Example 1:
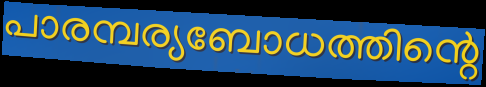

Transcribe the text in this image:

പാരമ്പര്യബോധത്തിന്റെ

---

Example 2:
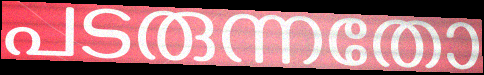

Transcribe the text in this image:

പടരുന്നതോ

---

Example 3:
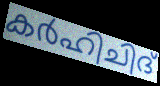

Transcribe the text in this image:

കർഹിചിദ്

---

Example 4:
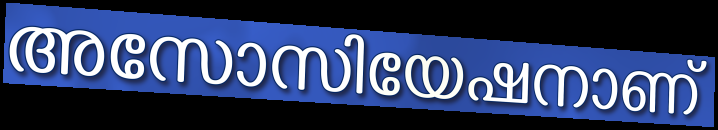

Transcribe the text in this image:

അസോസിയേഷനാണ്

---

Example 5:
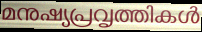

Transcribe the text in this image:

മനുഷ്യപ്രവൃത്തികൾ